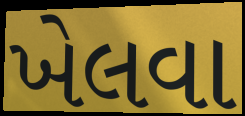
ખેલવા